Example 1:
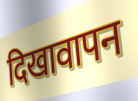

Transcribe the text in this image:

दिखावापन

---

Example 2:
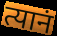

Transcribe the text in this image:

त्यानं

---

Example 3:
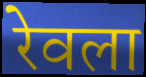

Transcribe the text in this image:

रेवला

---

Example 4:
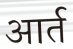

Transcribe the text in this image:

आर्त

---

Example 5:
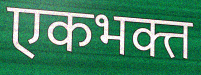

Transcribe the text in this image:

एकभक्त